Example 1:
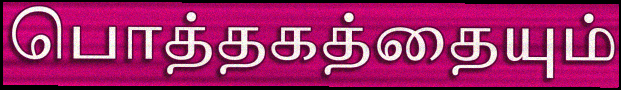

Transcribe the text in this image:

பொத்தகத்தையும்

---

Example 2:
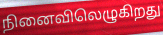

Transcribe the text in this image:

நினைவிலெழுகிறது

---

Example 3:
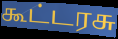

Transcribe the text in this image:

கூட்டரசு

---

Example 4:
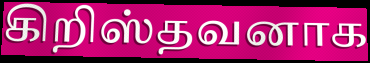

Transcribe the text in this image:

கிறிஸ்தவனாக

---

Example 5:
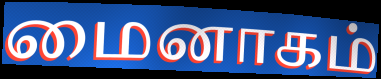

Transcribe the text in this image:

மைனாகம்